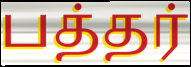
பத்தர்